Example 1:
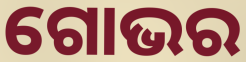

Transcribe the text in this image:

ଗୋଭର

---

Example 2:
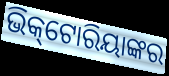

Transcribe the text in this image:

ଭିକ୍‌ଟୋରିୟାଙ୍କର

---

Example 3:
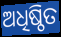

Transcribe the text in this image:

ଅଧିଷ୍ଠିତ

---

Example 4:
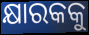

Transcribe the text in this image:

କ୍ଷାରକକୁ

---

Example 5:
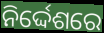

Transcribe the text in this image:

ନିର୍ଦ୍ଦେଶରେ